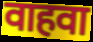
वाहवा